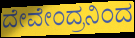
ದೇವೇಂದ್ರನಿಂದ